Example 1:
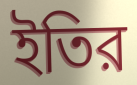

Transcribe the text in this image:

ইতির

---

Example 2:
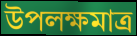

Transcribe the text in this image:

উপলক্ষমাত্র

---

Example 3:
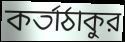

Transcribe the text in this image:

কর্তাঠাকুর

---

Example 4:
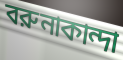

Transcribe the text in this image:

বরুনাকান্দা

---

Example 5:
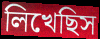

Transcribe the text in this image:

লিখেছিস